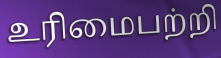
உரிமைபற்றி